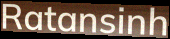
Ratansinh